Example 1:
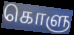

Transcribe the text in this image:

கொளு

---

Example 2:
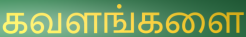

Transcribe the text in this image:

கவளங்களை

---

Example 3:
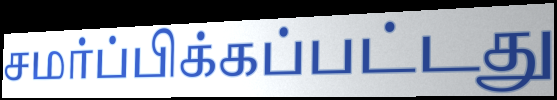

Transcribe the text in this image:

சமர்ப்பிக்கப்பட்டது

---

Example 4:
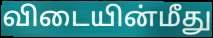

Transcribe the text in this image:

விடையின்மீது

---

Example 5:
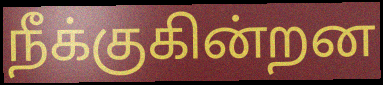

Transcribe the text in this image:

நீக்குகின்றன